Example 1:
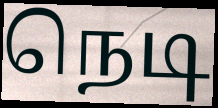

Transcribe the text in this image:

நெடி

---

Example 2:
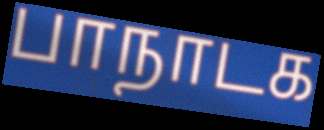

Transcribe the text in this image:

பாநாடக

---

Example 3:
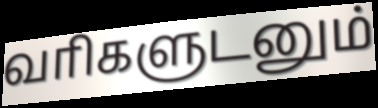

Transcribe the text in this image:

வரிகளுடனும்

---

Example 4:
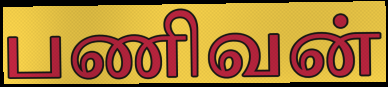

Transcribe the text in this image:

பணிவன்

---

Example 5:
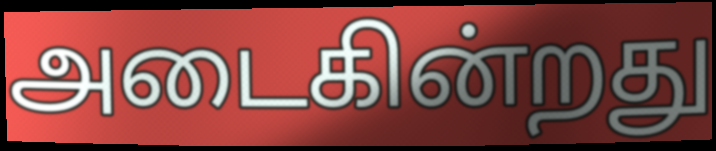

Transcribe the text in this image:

அடைகின்றது